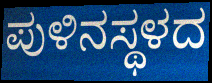
ಪುಳಿನಸ್ಥಳದ